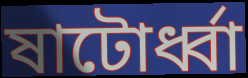
ষাটোর্ধ্বা